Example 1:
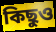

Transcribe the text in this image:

কিছুও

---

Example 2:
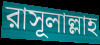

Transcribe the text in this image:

রাসূলাল্লাহ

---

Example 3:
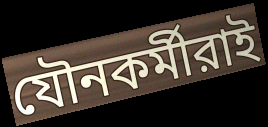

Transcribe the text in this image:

যৌনকর্মীরাই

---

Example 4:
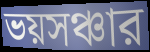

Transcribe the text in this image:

ভয়সঞ্চার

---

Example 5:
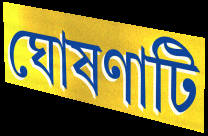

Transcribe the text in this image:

ঘোষণাটি